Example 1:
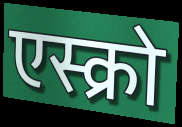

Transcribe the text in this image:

एस्क्रो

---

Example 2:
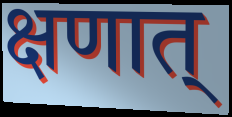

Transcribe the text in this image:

क्षणात्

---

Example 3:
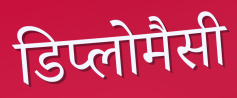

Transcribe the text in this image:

डिप्लोमैसी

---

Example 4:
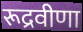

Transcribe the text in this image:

रूद्रवीणा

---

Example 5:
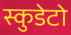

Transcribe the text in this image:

स्कुडेटो